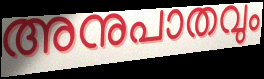
അനുപാതവും